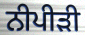
ਨੀਪੀੜੀ